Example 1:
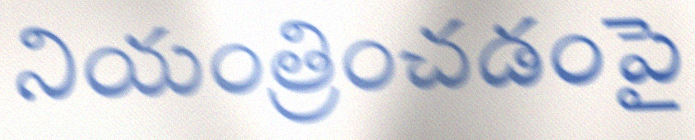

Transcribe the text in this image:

నియంత్రించడంపై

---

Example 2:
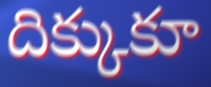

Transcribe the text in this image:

దిక్కుకూ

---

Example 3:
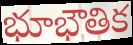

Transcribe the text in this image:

భూభౌతిక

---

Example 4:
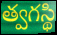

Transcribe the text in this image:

త్వగస్థి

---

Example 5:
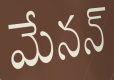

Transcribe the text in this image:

మేనన్